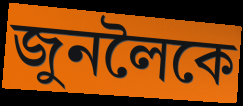
জুনলৈকে